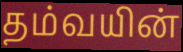
தம்வயின்